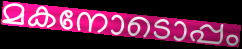
മകനോടൊപ്പം